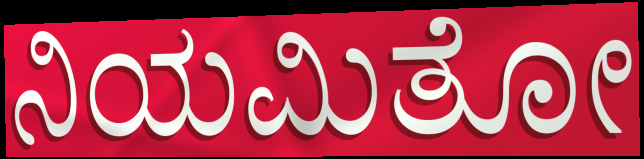
ನಿಯಮಿತೋ